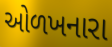
ઓળખનારા